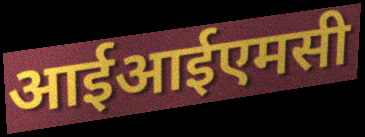
आईआईएमसी